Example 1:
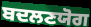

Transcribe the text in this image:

ਬਦਲਣਯੋਗ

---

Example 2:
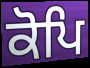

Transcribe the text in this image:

ਕੋਪਿ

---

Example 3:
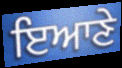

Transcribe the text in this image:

ਇਆਣੇ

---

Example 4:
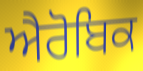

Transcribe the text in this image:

ਐਰੋਬਿਕ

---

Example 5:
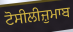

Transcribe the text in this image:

ਟੋਸੀਲੀਜ਼ੁਮਾਬ